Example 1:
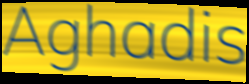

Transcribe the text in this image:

Aghadis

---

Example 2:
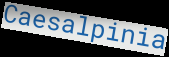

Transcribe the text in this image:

Caesalpinia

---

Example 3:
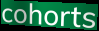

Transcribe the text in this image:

cohorts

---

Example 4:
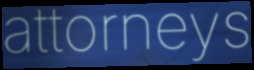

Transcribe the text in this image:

attorneys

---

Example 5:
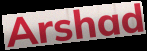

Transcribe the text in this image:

Arshad